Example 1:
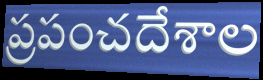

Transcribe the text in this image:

ప్రపంచదేశాల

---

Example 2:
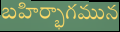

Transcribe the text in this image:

బహిర్భాగమున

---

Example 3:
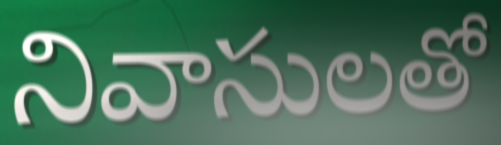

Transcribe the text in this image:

నివాసులతో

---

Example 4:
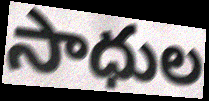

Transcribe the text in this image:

సాధుల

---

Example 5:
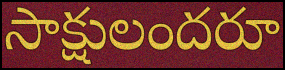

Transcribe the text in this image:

సాక్షులందరూ